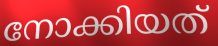
നോക്കിയത്